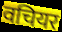
वचियर